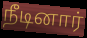
நீடினார்